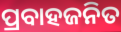
ପ୍ରବାହଜନିତ